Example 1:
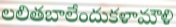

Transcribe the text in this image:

లలితబాలేందుకళామౌళి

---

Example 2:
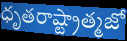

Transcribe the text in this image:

ధృతరాష్ట్రాత్మజో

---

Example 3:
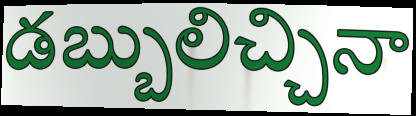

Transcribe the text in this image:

డబ్బులిచ్చినా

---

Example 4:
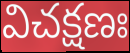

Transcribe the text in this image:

విచక్షణః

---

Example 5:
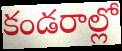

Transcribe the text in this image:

కండరాల్లో